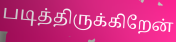
படித்திருக்கிறேன்